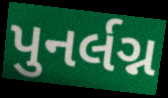
પુનર્લગ્ન